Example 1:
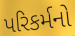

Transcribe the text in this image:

પરિકર્મનો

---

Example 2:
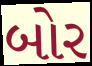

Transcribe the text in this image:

બોર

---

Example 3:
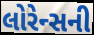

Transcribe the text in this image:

લોરેન્સની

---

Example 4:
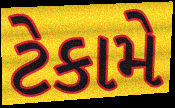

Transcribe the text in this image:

ટેકામે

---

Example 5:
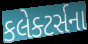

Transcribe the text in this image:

કલેક્ટર્સના